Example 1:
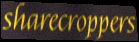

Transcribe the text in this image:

sharecroppers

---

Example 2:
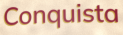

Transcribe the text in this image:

Conquista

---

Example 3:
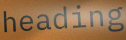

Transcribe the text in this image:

heading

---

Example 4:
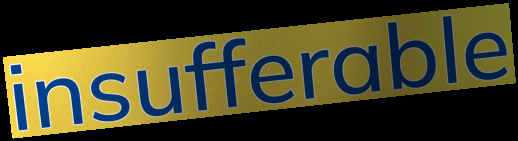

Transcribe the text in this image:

insufferable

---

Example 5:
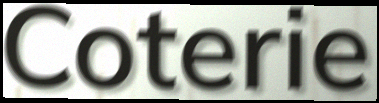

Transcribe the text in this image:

Coterie